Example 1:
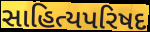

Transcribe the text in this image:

સાહિત્યપરિષદ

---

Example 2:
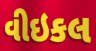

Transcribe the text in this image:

વીઇકલ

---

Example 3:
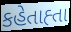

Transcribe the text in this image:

કહેતાહ્તા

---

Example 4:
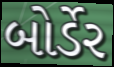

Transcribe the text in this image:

બોર્ડેર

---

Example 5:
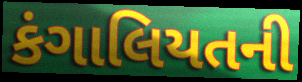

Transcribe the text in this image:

કંગાલિયતની